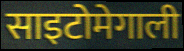
साइटोमेगाली